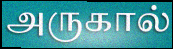
அருகால்